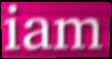
iam